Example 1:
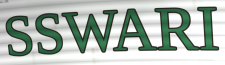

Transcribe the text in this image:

SSWARI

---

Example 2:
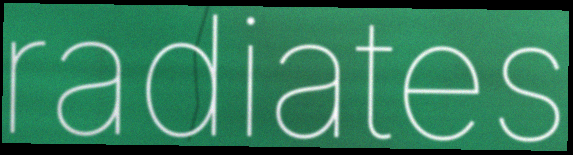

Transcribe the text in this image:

radiates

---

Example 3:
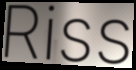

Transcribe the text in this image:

Riss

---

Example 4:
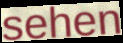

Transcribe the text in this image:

sehen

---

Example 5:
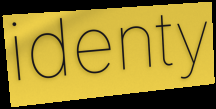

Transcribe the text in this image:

identy